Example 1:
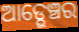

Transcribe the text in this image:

ଆଡ୍ଭେଞ୍ଚର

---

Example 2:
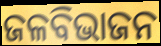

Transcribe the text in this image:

ଜଳବିଭାଜନ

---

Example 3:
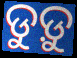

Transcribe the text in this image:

ଡୁଡ଼ୁ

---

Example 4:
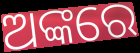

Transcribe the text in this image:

ଅଙ୍କରେ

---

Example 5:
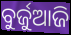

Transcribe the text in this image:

ବୁର୍ଜୁଆଜି